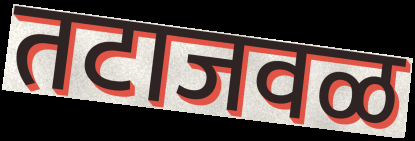
तटाजवळ